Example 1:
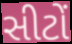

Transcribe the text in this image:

સીટોં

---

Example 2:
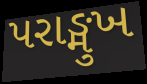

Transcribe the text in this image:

પરાઙ્મુખ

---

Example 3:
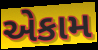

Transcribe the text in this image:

એકામ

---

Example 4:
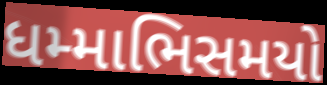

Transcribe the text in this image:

ધમ્માભિસમયો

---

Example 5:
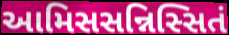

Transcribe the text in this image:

આમિસસન્નિસ્સિતં